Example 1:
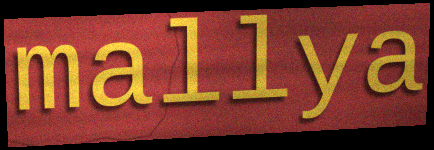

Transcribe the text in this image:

mallya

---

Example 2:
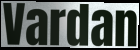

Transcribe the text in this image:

Vardan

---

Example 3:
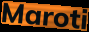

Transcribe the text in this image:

Maroti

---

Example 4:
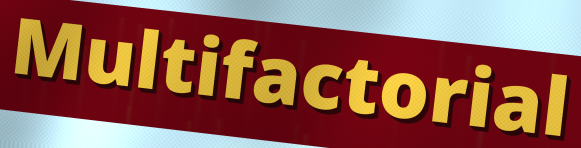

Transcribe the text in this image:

Multifactorial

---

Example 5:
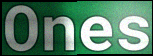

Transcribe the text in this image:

Ones